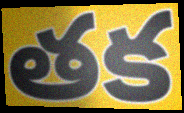
తక